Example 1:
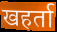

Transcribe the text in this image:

खहर्ता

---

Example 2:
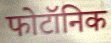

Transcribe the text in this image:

फोटॉनिक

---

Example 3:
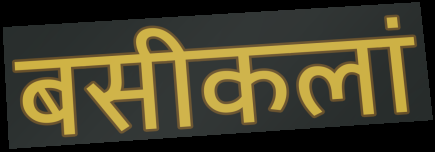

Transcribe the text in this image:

बसीकलां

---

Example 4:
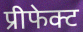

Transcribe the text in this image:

प्रीफेक्ट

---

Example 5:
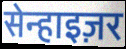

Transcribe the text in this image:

सेन्हाइज़र